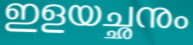
ഇളയച്ഛനും